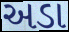
અડા